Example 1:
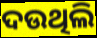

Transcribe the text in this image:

ଦଉଥିଲି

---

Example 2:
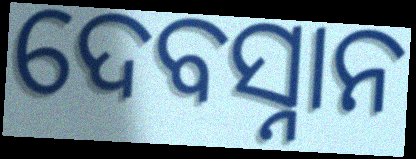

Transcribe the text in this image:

ଦେବସ୍ନାନ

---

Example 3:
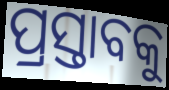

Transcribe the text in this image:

ପ୍ରସ୍ତାବକୁ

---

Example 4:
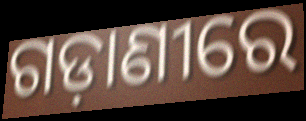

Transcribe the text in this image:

ଗଡ଼ାଣୀରେ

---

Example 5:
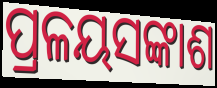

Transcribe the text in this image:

ପ୍ରଳୟସଙ୍କାଶ